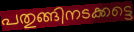
പതുങ്ങിനടക്കട്ടെ